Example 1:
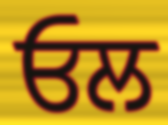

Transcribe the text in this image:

ਓਲ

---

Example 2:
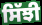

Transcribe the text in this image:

ਸਿੱਝੀ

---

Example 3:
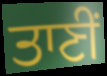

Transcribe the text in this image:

ਤਾਣੀਂ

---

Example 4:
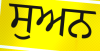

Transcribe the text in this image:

ਸੁਅਨ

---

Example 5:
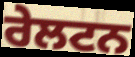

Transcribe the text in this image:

ਰੇਲਟਨ